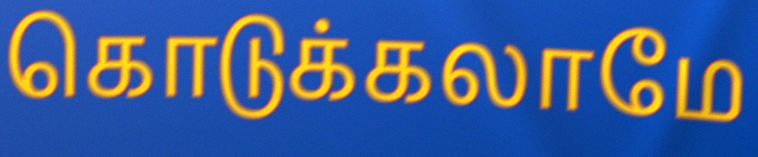
கொடுக்கலாமே